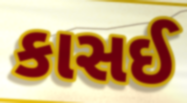
કાસઈ